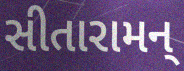
સીતારામન્